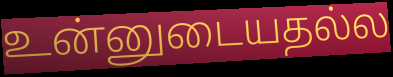
உன்னுடையதல்ல